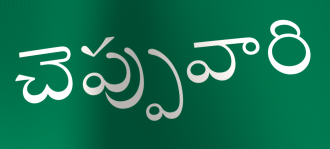
చెప్పువారి